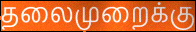
தலைமுறைக்கு